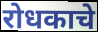
रोधकाचे